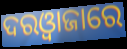
ଦରଓ୍ୱାଜାରେ